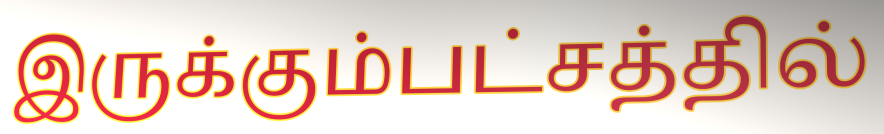
இருக்கும்பட்சத்தில்